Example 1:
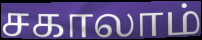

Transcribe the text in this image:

சகாலாம்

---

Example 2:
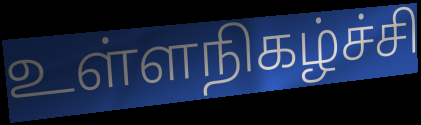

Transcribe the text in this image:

உள்ளநிகழ்ச்சி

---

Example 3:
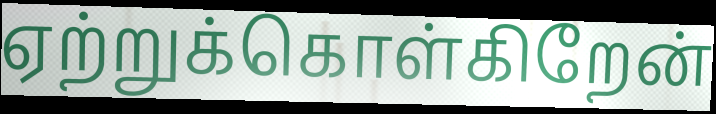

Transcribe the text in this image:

ஏற்றுக்கொள்கிறேன்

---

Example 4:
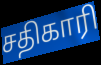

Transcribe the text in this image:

சதிகாரி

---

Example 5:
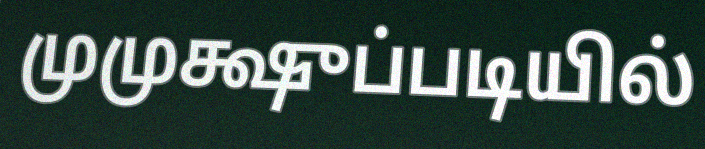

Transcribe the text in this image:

முமுக்ஷுப்படியில்